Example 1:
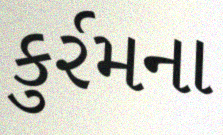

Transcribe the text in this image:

કુર્રમના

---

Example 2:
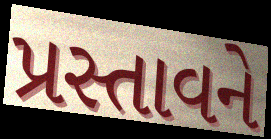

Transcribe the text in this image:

પ્રસ્તાવને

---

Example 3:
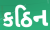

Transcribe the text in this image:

કઠિન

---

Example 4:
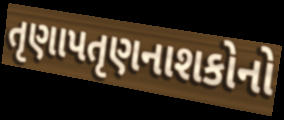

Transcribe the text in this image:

તૃણાપતૃણનાશકોનો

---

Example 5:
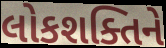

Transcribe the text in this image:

લોકશક્તિને